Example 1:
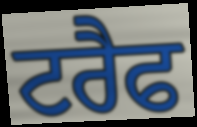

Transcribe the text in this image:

ਟਰੈਫ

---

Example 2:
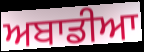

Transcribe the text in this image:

ਅਬਾਡੀਆ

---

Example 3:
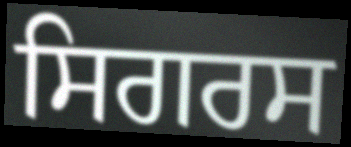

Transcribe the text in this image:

ਸਿਗਰਸ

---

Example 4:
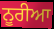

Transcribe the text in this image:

ਨੂਰੀਆ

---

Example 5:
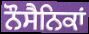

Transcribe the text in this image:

ਨੌਸੈਨਿਕਾਂ